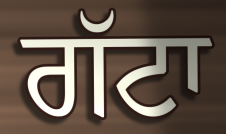
ਗੱਟਾ